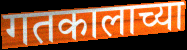
गतकालाच्या